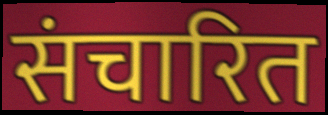
संचारित